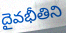
దైవభీతిని